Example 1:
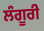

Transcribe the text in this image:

ਲੰਗੂਰੀ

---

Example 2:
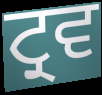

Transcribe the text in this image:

ਟ੍ਰਵ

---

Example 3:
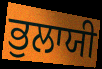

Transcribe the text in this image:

ਭੁਲਾਯੀ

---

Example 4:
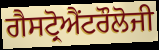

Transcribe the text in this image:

ਗੈਸਟ੍ਰੋਐਂਟਰੌਲੋਜੀ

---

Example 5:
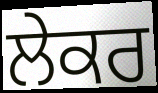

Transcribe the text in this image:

ਲੇਕਰ